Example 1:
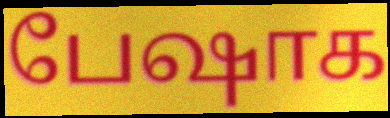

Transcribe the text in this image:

பேஷாக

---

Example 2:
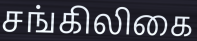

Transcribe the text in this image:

சங்கிலிகை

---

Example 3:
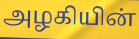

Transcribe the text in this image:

அழகியின்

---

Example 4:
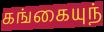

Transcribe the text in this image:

கங்கையுந்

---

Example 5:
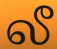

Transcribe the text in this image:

லீ